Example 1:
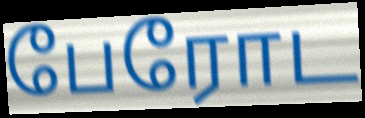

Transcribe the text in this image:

பேரோட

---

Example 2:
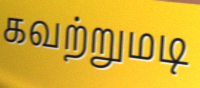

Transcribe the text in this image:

கவற்றுமடி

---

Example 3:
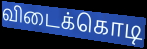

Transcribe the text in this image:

விடைக்கொடி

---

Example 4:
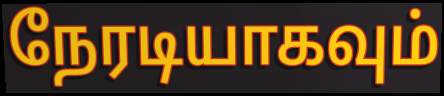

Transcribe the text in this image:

நேரடியாகவும்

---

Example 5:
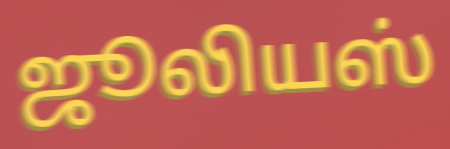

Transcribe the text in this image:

ஜூலியஸ்